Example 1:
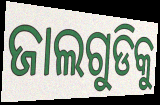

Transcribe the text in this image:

ଜାଲଗୁଡିକୁ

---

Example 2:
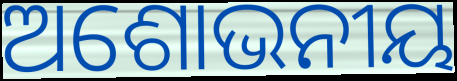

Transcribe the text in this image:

ଅଶୋଭନୀୟ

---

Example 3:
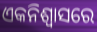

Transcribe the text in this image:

ଏକନିଶ୍ୱାସରେ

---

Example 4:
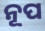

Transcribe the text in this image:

ନୂପ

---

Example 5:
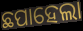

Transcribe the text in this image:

ଛପାହେଲା